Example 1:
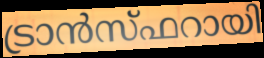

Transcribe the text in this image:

ട്രാൻസ്ഫറായി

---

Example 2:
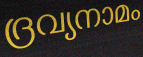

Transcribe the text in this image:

ദ്രവ്യനാമം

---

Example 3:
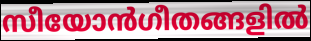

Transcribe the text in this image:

സീയോൻഗീതങ്ങളിൽ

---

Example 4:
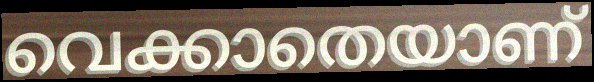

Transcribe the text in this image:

വെക്കാതെയാണ്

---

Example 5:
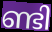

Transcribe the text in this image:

ണ്ടി